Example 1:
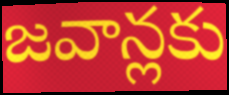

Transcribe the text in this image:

జవాన్లకు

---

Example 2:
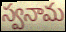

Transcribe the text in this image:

స్వనామ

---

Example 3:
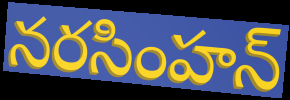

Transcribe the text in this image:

నరసింహన్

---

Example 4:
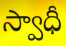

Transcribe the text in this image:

స్వాధీ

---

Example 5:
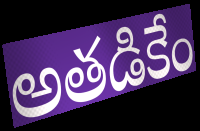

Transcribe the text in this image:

అతడికేం